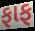
ફાફ